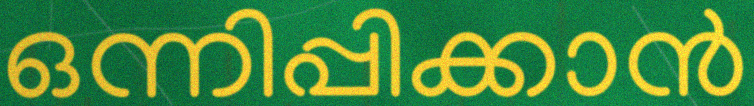
ഒന്നിപ്പിക്കാൻ